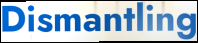
Dismantling